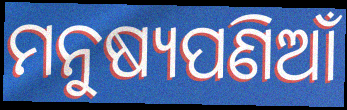
ମନୁଷ୍ୟପଣିଆଁ